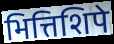
भित्तिशिपे